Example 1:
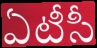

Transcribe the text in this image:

ఏటీసీ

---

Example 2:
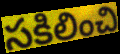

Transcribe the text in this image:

సకిలించి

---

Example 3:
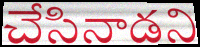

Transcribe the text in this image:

చేసినాడని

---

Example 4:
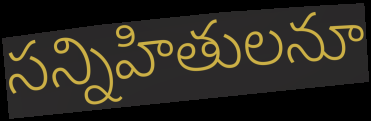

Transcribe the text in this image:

సన్నిహితులనూ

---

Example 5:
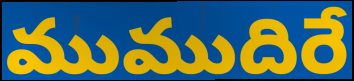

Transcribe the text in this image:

ముముదిరే